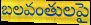
బలవంతులపై